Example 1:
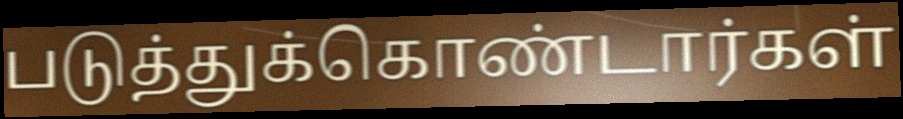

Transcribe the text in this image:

படுத்துக்கொண்டார்கள்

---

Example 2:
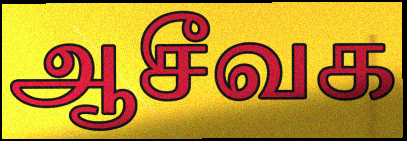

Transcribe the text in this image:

ஆசீவக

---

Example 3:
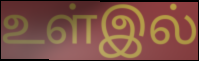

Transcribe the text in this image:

உள்இல்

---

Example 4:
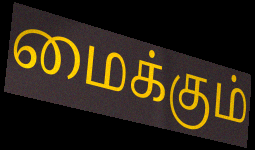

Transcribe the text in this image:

மைக்கும்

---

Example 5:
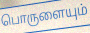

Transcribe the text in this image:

பொருளையும்